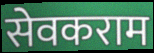
सेवकराम